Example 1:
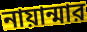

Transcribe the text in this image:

নায়ান্মার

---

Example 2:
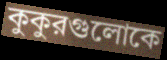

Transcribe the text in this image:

কুকুরগুলোকে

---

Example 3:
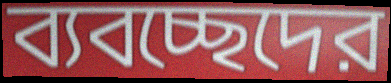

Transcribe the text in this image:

ব্যবচ্ছেদের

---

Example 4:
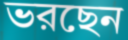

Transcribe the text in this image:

ভরছেন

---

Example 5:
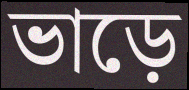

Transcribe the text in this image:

ভাড়ে